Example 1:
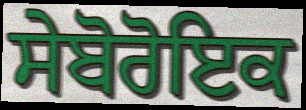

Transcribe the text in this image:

ਸੇਬੋਰੋਇਕ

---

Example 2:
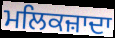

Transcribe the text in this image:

ਮਲਿਕਜ਼ਾਦਾ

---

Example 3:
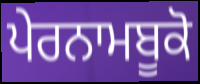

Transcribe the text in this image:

ਪੇਰਨਾਮਬੂਕੋ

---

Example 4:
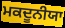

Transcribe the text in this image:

ਮਕਦੂਨੀਯਾ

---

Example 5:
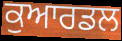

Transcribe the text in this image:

ਕੁਆਰਡਲ